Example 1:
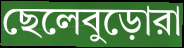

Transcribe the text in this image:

ছেলেবুড়োরা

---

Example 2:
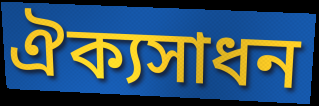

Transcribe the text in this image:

ঐক্যসাধন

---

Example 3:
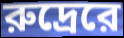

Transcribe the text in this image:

রুদ্রেরে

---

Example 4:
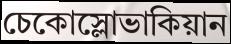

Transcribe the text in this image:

চেকোস্লোভাকিয়ান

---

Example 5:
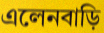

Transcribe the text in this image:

এলেনবাড়ি